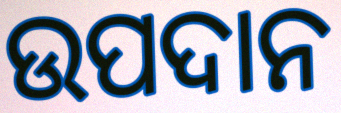
ଉପଦାନ